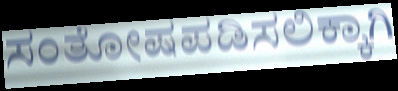
ಸಂತೋಷಪಡಿಸಲಿಕ್ಕಾಗಿ